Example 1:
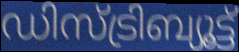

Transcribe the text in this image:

ഡിസ്ട്രിബ്യൂട്ട്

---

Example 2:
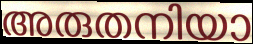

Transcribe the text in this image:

അരുതനിയാ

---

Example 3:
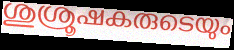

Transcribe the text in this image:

ശുശ്രൂഷകരുടെയും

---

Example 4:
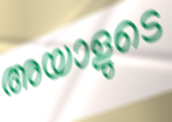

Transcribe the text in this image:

അയാളുടെ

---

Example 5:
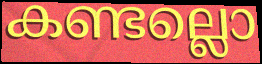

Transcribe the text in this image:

കണ്ടല്ലൊ